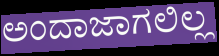
ಅಂದಾಜಾಗಲಿಲ್ಲ